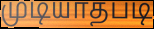
முடியாதபடி